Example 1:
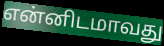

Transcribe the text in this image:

என்னிடமாவது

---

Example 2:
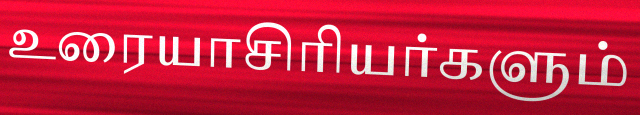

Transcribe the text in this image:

உரையாசிரியர்களும்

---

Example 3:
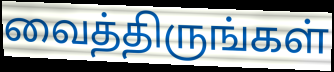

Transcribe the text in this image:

வைத்திருங்கள்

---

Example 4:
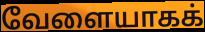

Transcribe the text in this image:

வேளையாகக்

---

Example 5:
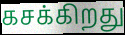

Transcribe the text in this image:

கசக்கிறது